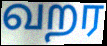
வறர